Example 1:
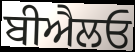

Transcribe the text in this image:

ਬੀਐਲਓ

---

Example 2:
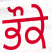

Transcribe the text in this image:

ਭੌਕੇ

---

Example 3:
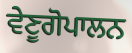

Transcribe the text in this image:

ਵੇਣੂਗੋਪਾਲਨ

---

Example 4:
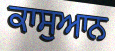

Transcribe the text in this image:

ਕਾਸੁਆਨ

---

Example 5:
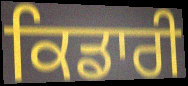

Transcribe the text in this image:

ਕਿਡਾਰੀ